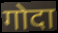
गोदा